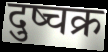
दुष्चक्र